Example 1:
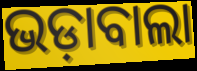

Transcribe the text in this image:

ଭଡ଼ାବାଲା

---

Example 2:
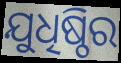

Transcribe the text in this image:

ଯୁଧିଷ୍ଠିର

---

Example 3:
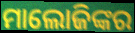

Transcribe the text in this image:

ମାଲୋଜିଙ୍କର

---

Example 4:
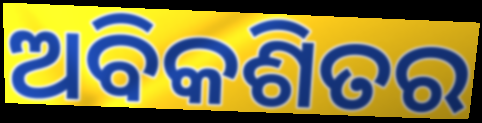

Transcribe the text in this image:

ଅବିକଶିତର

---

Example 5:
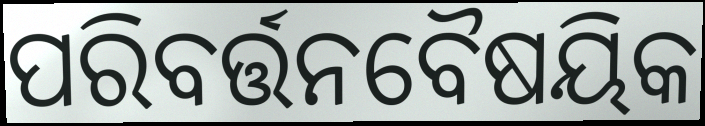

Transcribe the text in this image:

ପରିବର୍ତ୍ତନବୈଷୟିକ